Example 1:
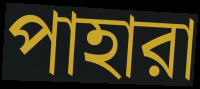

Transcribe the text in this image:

পাহারা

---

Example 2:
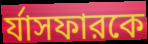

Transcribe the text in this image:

র্যাসফারকে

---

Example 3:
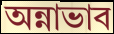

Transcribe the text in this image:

অন্নাভাব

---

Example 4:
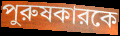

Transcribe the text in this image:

পুরুষকারকে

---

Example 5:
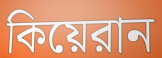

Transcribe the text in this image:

কিয়েরান